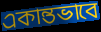
একান্তভাবে